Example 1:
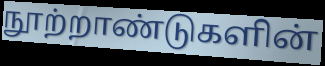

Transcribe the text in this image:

நூற்றாண்டுகளின்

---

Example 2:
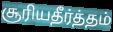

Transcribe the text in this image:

சூரியதீர்த்தம்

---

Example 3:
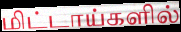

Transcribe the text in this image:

மிட்டாய்களில்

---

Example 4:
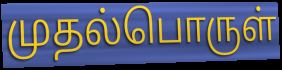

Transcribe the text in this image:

முதல்பொருள்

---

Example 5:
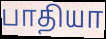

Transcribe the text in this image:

பாதியா